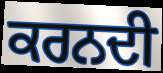
ਕਰਨਦੀ